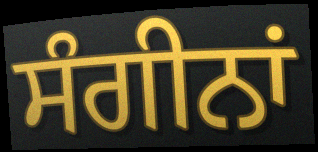
ਸੰਗੀਨਾਂ